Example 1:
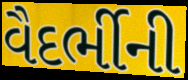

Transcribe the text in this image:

વૈદર્ભીની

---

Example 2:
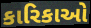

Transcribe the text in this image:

કારિકાઓ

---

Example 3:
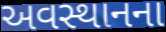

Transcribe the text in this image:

અવસ્થાનના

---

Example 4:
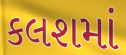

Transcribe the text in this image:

કલશમાં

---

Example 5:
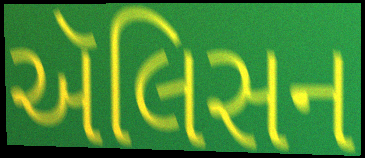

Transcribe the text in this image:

ઍલિસન